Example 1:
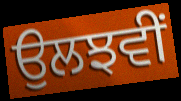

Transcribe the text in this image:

ਉਲਝਵੀਂ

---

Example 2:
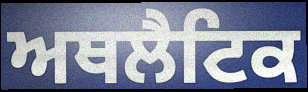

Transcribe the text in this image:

ਅਥਲੈਟਿਕ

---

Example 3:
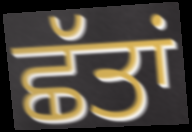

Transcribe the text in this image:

ਛੱਤਾਂ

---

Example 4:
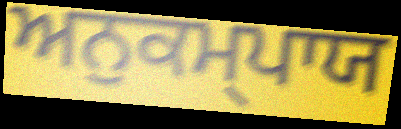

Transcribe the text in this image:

ਅਨੁਕਮ੍ਪਾਯ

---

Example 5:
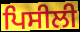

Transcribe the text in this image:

ਪਿਸੀਲੀ